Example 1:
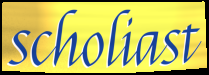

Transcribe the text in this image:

scholiast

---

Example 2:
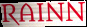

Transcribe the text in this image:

RAINN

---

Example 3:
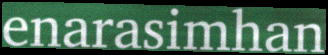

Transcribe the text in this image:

enarasimhan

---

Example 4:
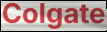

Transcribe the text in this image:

Colgate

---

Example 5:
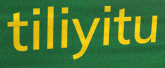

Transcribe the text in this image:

tiliyitu